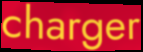
charger